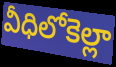
వీధిలోకెల్లా